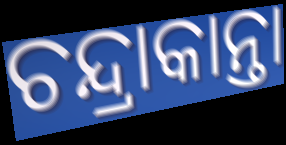
ଚନ୍ଦ୍ରାକାନ୍ତା